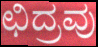
ಛಿದ್ರವು